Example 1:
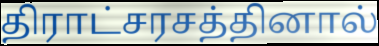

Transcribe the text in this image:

திராட்சரசத்தினால்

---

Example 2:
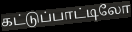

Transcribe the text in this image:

கட்டுப்பாட்டிலோ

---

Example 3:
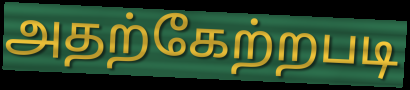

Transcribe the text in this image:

அதற்கேற்றபடி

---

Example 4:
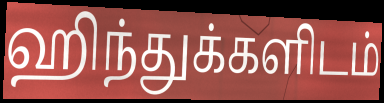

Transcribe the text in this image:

ஹிந்துக்களிடம்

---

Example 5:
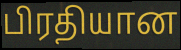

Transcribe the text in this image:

பிரதியான